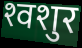
श्वशुर